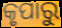
କୃପାରୁ